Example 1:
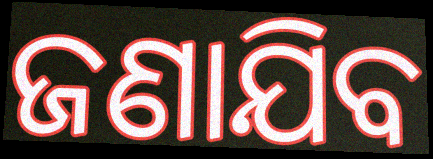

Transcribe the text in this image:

ଜଣାଯିବ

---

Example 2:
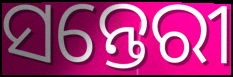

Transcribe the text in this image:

ସନ୍ତେରୀ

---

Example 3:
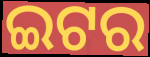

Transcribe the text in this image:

ଇଟର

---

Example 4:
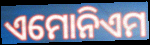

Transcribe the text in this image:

ଏମୋନିଏମ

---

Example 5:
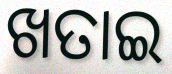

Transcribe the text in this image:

ଖତାଇ